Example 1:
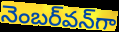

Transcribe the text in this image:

నెంబర్‌వన్‌గా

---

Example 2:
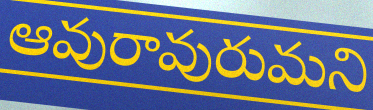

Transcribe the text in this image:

ఆవురావురుమని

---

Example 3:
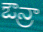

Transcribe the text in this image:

ఔన్రా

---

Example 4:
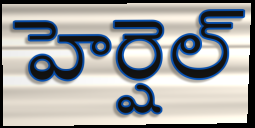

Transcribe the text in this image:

హెర్షెల్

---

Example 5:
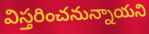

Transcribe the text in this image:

విస్తరించనున్నాయని